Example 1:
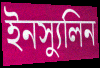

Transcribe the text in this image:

ইনস্যুলিন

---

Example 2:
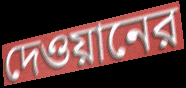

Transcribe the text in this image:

দেওয়ানের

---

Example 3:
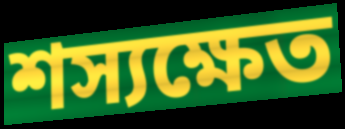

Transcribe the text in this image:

শস্যক্ষেত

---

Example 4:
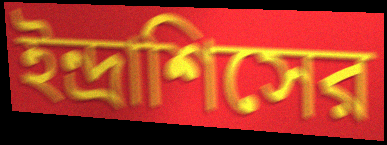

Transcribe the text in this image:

ইন্দ্রাশিসের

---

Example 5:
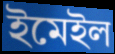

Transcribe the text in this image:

ইমেইল